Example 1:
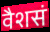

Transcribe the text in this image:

वैशसं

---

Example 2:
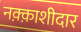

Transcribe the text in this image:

नक़्क़ाशीदार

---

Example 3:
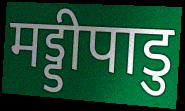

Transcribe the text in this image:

मड्डीपाडु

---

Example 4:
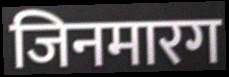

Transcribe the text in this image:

जिनमारग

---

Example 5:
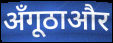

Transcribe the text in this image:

अँगूठाऔर